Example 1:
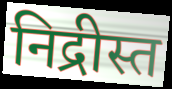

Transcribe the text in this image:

निद्रीस्त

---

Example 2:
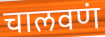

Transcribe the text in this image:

चालवणं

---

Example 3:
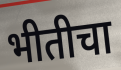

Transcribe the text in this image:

भीतीचा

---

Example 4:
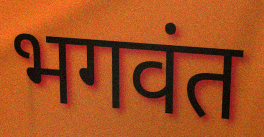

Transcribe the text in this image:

भगवंत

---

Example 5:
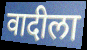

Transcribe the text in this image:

वादीला